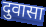
दुवासा